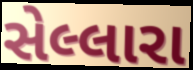
સેલ્લારા